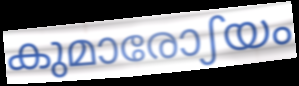
കുമാരോഽയം